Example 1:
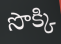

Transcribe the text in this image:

సొక్కి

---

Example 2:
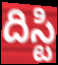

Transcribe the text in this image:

దిస్టి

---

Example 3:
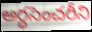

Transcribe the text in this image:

అర్ధసెంచరీని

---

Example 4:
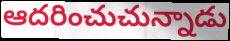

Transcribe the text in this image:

ఆదరించుచున్నాడు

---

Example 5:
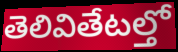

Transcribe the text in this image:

తెలివితేటల్తో